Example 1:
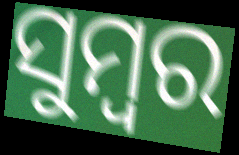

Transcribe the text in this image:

ସୁମ୍ବର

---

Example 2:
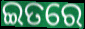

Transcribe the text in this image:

ଇତରେ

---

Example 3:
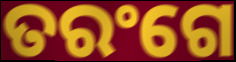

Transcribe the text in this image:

ତରଂଗେ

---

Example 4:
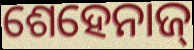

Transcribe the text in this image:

ଶେହେନାଜ୍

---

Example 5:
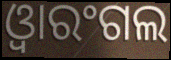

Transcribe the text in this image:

ଓ୍ୱାରଂଗଲ